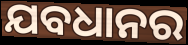
ଯବଧାନର